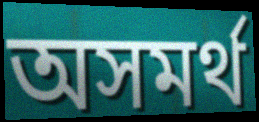
অসমৰ্থ